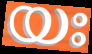
യഃ